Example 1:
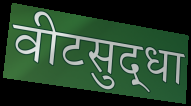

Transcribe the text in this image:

वीटसुद्धा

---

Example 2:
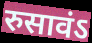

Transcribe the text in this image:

रुसावंऽ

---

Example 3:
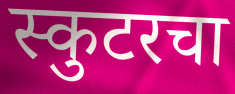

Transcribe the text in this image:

स्कुटरचा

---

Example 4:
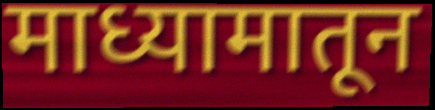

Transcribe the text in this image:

माध्यामातून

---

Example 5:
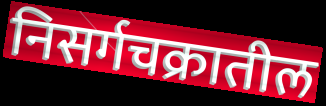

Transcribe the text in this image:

निसर्गचक्रातील